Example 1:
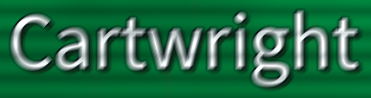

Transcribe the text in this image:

Cartwright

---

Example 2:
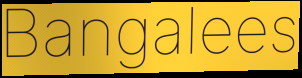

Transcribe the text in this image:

Bangalees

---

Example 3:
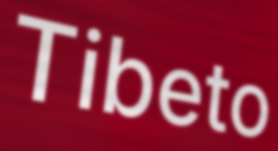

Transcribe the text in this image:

Tibeto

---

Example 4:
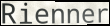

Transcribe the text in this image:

Rienner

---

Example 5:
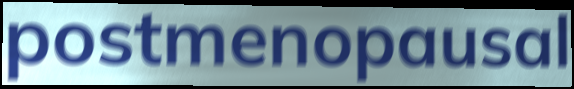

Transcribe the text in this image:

postmenopausal